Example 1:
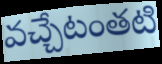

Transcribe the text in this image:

వచ్చేటంతటి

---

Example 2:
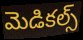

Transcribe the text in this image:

మెడికల్స్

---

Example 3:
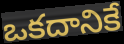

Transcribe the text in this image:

ఒకదానికే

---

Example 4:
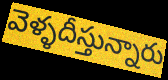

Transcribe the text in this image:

వెళ్ళదీస్తున్నారు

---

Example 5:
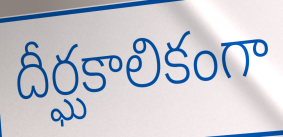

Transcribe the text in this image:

దీర్ఘకాలికంగా